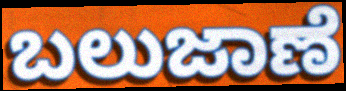
ಬಲುಜಾಣೆ